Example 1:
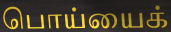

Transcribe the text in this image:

பொய்யைக்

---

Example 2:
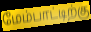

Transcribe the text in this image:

மேம்பாட்டிற்கு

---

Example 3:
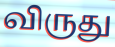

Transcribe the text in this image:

விருது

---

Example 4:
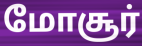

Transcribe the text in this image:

மோசூர்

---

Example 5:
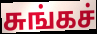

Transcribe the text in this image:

சுங்கச்